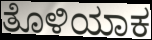
ತೊಳಿಯಾಕ